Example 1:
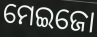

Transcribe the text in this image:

ମେଇଜୋ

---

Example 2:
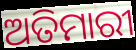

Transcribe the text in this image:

ଅତିମାରୀ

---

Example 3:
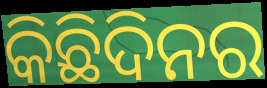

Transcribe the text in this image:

କିଛିଦିନର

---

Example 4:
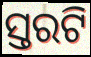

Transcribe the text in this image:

ସ୍ତରଟି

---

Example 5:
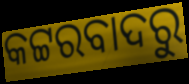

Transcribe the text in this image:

କଟ୍ଟରବାଦରୁ